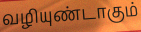
வழியுண்டாகும்